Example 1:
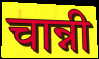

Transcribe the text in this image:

चान्नी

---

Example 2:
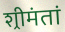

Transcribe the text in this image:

श्रीमंतां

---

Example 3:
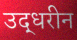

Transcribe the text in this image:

उद्धरीन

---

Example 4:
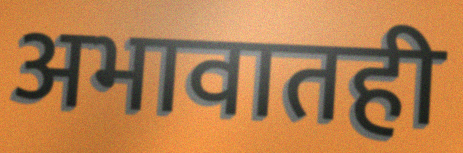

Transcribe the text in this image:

अभावातही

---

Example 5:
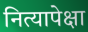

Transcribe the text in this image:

नित्यापेक्षा